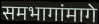
समभागांमागे